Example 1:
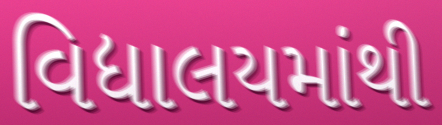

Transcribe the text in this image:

વિદ્યાલયમાંથી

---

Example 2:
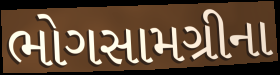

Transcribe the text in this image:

ભોગસામગ્રીના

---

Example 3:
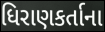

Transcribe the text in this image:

ધિરાણકર્તાના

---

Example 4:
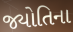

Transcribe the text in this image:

જ્યોતિના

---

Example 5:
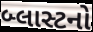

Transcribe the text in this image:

બ્લાસ્ટનો